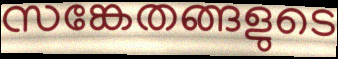
സങ്കേതങ്ങളുടെ